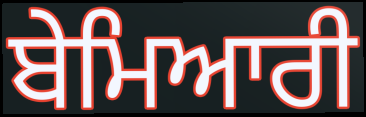
ਬੇਮਿਆਰੀ